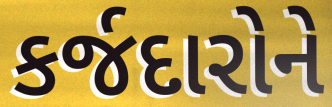
કર્જદારોને